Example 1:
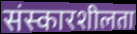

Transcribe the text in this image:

संस्कारशीलता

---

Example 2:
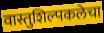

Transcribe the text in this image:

वास्तुशिल्पकलेचा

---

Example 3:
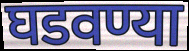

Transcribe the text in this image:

घडवण्या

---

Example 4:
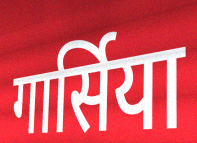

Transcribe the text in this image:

गार्सिया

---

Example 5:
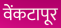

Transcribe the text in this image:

वेंकटापूर